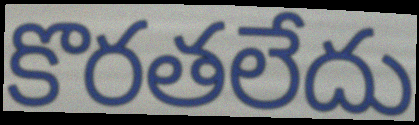
కొరతలేదు